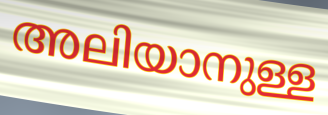
അലിയാനുള്ള